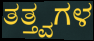
ತತ್ತ್ವಗಳ